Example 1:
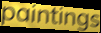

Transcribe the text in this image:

paintings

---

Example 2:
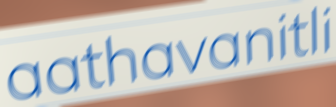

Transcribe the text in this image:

aathavanitli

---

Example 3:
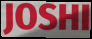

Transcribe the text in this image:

JOSHI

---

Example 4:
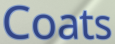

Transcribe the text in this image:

Coats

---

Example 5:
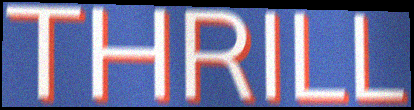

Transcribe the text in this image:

THRILL